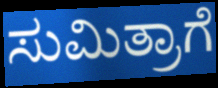
ಸುಮಿತ್ರಾಗೆ